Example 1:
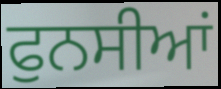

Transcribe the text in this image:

ਫੁਨਸੀਆਂ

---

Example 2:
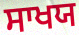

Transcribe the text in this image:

ਸਾਖਯ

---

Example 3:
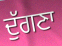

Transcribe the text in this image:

ਦੁੱਗਣਾ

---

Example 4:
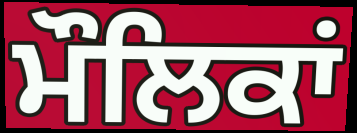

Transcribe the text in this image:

ਮੌਲਿਕਾਂ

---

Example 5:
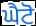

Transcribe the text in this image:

ਘੈਟੋ